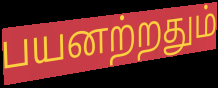
பயனற்றதும்